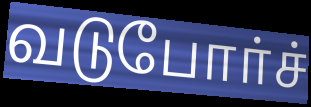
வடுபோர்ச்